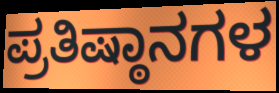
ಪ್ರತಿಷ್ಠಾನಗಳ